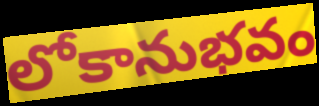
లోకానుభవం